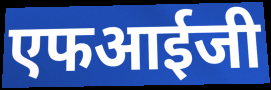
एफआईजी